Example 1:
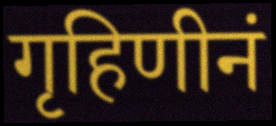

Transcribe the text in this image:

गृहिणीनं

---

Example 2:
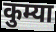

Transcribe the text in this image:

कुम्या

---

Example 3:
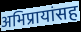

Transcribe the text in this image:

अभिप्रायांसह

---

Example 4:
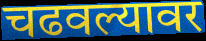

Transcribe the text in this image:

चढवल्यावर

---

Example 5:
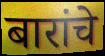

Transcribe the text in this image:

बारांचे